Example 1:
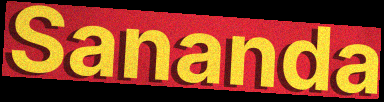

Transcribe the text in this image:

Sananda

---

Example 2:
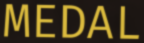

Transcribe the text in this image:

MEDAL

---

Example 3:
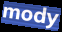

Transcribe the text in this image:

mody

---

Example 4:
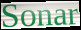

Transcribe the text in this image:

Sonar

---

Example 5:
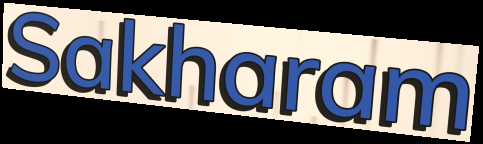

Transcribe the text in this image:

Sakharam